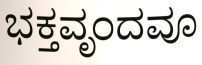
ಭಕ್ತವೃಂದವೂ